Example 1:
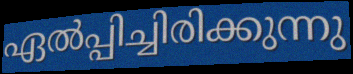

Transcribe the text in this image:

ഏൽപ്പിച്ചിരിക്കുന്നു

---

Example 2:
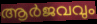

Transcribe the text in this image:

ആർജവവും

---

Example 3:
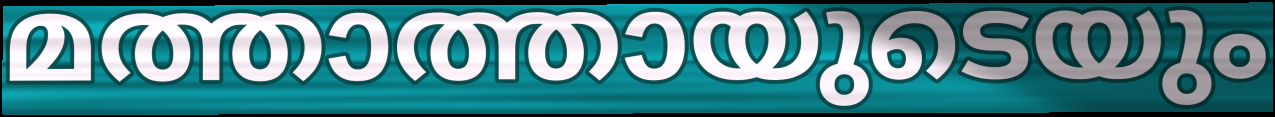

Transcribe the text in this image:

മത്താത്തായുടെയും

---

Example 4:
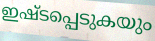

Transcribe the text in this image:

ഇഷ്ടപ്പെടുകയും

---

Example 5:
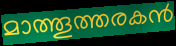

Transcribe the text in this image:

മാത്തൂത്തരകൻ